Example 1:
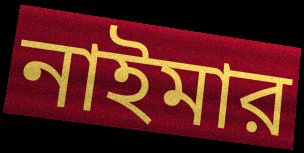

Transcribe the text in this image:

নাইমার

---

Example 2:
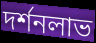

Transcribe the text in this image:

দর্শনলাভ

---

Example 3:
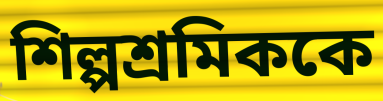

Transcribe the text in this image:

শিল্পশ্রমিককে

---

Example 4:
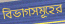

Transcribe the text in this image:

বিভাগসমূহের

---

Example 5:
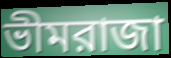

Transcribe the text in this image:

ভীমরাজা